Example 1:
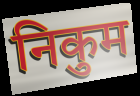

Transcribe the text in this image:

निकुम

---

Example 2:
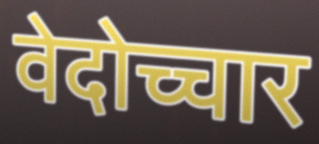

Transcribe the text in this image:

वेदोच्चार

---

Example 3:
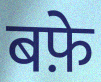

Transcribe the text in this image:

बफ़े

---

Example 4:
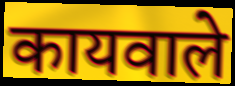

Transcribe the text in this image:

कायवाले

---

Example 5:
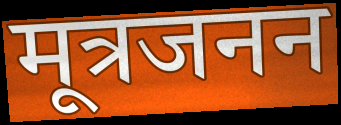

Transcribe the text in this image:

मूत्रजनन